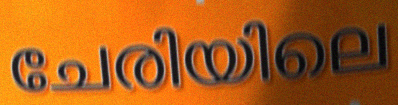
ചേരിയിലെ